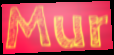
Mur